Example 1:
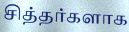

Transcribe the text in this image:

சித்தர்களாக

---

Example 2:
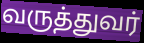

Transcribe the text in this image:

வருத்துவர்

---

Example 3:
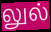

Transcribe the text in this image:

லுல்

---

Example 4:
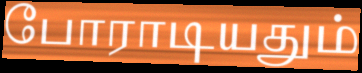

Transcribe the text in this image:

போராடியதும்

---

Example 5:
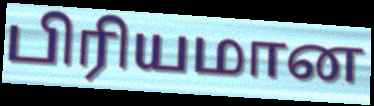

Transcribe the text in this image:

பிரியமான